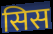
सिस